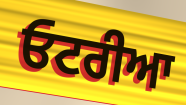
ਓਟਰੀਆ